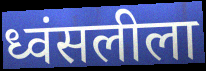
ध्वंसलीला